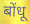
बोंधू